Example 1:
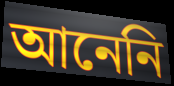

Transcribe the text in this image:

আনেনি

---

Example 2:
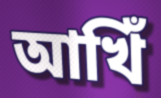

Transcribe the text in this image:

আখিঁ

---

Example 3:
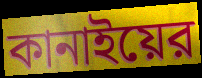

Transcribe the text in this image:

কানাইয়ের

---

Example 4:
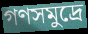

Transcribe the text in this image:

গণসমুদ্রে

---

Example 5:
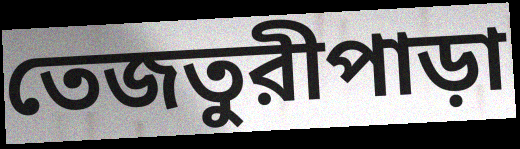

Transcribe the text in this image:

তেজতুরীপাড়া